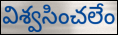
విశ్వసించలేం